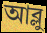
আব্লু